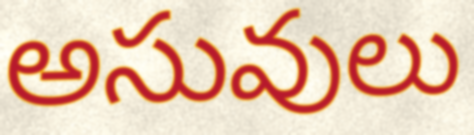
అసువులు